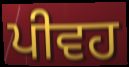
ਪੀਵਹ